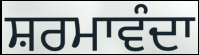
ਸ਼ਰਮਾਵੰਦਾ